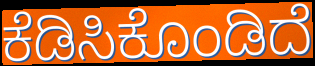
ಕೆಡಿಸಿಕೊಂಡಿದೆ